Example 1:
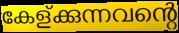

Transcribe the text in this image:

കേള്ക്കുന്നവന്റെ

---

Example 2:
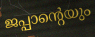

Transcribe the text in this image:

ജപ്പാന്റെയും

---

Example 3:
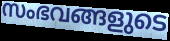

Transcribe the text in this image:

സംഭവങ്ങളുടെ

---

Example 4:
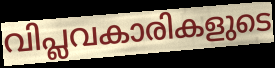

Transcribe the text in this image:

വിപ്ലവകാരികളുടെ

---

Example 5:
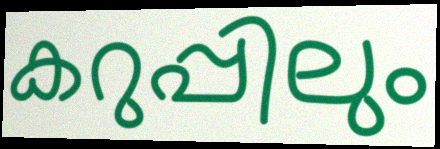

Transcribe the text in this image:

കറുപ്പിലും